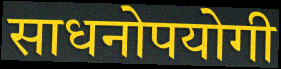
साधनोपयोगी